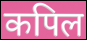
कपिल